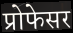
प्रोफेसर